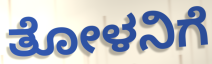
ತೋಳನಿಗೆ